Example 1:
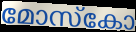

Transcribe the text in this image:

മോസ്‌കോ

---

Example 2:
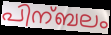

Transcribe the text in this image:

പിന്ബലം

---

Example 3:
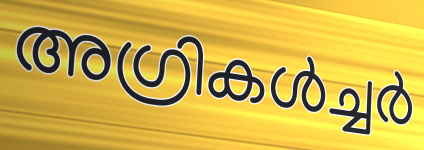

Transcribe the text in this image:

അഗ്രികൾച്ചർ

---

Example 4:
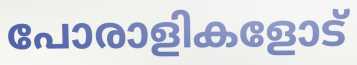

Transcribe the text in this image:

പോരാളികളോട്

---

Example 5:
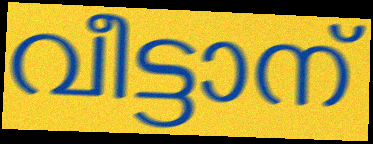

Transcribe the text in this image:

വീട്ടാന്